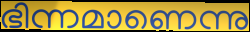
ഭിന്നമാണെന്നു